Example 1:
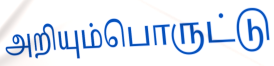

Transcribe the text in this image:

அறியும்பொருட்டு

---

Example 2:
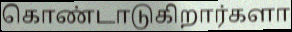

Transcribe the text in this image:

கொண்டாடுகிறார்களா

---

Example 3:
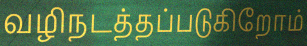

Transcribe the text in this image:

வழிநடத்தப்படுகிறோம்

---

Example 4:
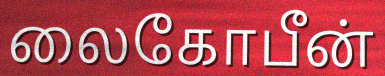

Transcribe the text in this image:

லைகோபீன்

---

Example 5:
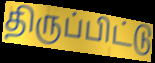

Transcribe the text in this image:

திருப்பிட்டு